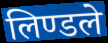
लिण्डले